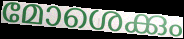
മോശെക്കും